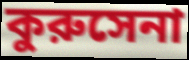
কুরুসেনা